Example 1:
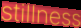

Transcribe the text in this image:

stillness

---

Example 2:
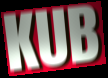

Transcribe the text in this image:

KUB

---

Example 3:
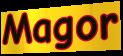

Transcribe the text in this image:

Magor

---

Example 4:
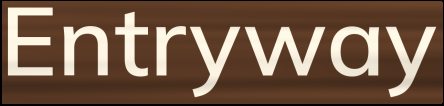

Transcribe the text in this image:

Entryway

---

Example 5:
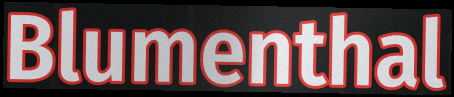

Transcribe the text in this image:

Blumenthal